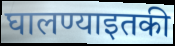
घालण्याइतकी